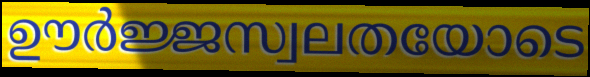
ഊർജ്ജസ്വലതയോടെ